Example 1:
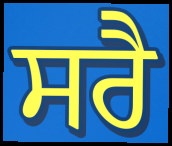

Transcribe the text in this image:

ਸਰੈ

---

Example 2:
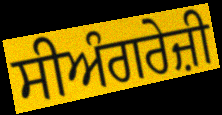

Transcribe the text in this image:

ਸੀਅੰਗਰੇਜ਼ੀ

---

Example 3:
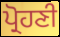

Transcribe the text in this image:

ਪ੍ਰੋਹਣੀ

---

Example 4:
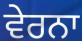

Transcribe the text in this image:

ਵੇਰਨਾ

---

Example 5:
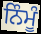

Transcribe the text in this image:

ਨਿੰਮੂੰ